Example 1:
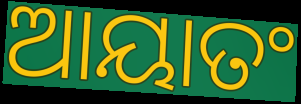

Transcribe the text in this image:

ଆୟାତଂ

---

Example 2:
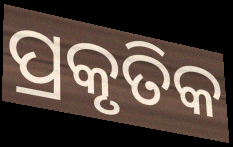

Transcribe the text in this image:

ପ୍ରକୃତିକ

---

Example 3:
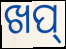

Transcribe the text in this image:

ଖପ୍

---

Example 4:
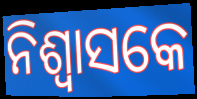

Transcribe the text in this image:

ନିଶ୍ଵାସକେ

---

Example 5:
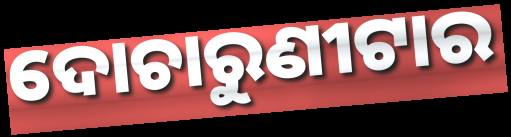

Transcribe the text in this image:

ଦୋଚାରୁଣୀଟାର